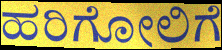
ಹರಿಗೋಲಿಗೆ